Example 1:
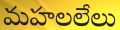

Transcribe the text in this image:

మహలలేలు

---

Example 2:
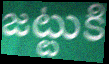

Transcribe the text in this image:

జట్టుకి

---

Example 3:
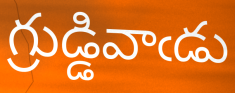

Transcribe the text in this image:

గ్రుడ్డివాఁడు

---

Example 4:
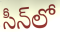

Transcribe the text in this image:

సీన్‌లో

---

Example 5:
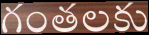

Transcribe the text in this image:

గంతలకు